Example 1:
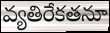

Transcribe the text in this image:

వ్యతిరేకతనూ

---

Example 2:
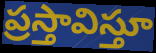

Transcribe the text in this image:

ప్రస్తావిస్తూ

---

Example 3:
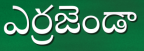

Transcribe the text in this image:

ఎర్రజెండా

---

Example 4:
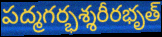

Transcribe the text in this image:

పద్మగర్భశ్శరీరభృత్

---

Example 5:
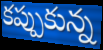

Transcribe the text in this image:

కప్పుకున్న